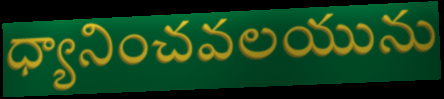
ధ్యానించవలయును